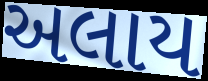
અલાય